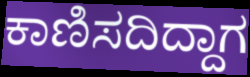
ಕಾಣಿಸದಿದ್ದಾಗ